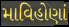
માવિહોણાં